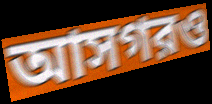
আসগরও